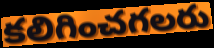
కలిగించగలరు